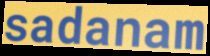
sadanam